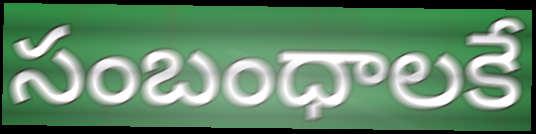
సంబంధాలకే